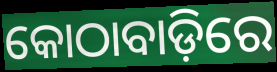
କୋଠାବାଡ଼ିରେ